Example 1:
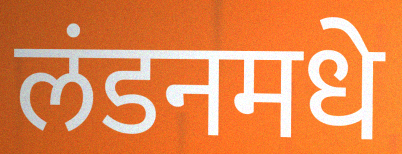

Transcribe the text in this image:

लंडनमधे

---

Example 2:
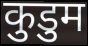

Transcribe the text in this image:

कुडुम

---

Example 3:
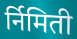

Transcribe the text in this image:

र्निमिती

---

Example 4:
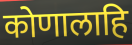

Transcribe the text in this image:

कोणालाहि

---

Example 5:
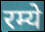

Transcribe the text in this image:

रम्ये